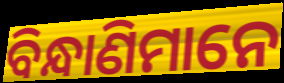
ବିନ୍ଧାଣିମାନେ